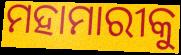
ମହାମାରୀକୁ